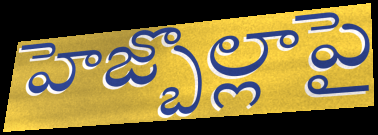
హెజ్బొల్లాపై